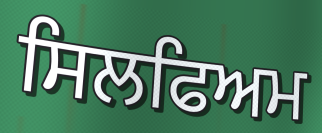
ਸਿਲਫਿਅਮ